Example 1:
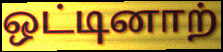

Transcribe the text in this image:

ஒட்டினாற்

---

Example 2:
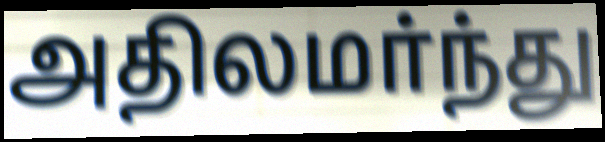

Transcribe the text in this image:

அதிலமர்ந்து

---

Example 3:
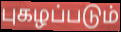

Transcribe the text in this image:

புகழப்படும்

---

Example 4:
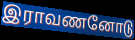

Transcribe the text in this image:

இராவணனோடு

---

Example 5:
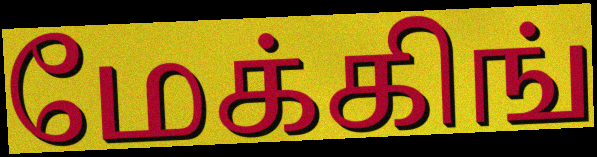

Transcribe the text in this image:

மேக்கிங்